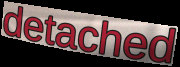
detached